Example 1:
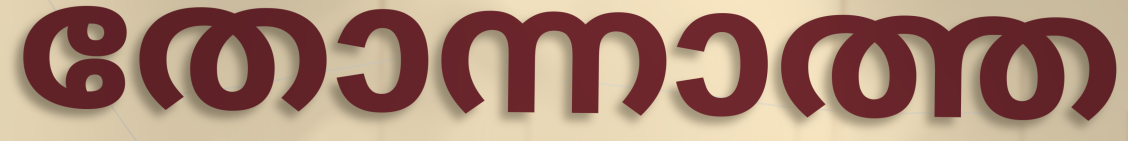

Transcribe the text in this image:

തോന്നാത്ത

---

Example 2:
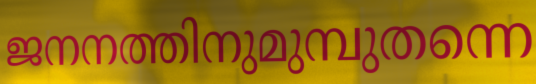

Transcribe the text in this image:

ജനനത്തിനുമുമ്പുതന്നെ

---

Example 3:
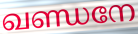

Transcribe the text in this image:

ഖണ്ഡനേ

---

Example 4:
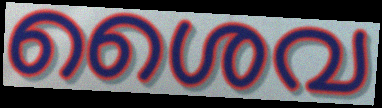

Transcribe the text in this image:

ശൈവ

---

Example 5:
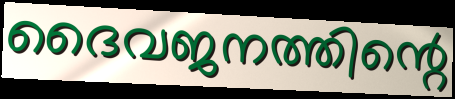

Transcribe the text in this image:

ദൈവജനത്തിന്റെ